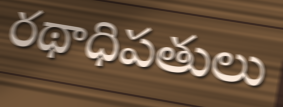
రథాధిపతులు